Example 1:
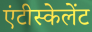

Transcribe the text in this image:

एंटीस्केलेंट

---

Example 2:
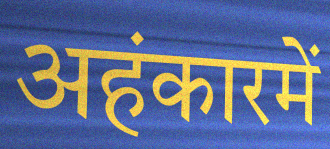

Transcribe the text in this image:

अहंकारमें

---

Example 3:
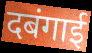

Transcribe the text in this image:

दबंगाई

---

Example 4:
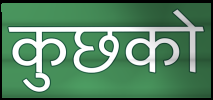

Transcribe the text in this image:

कुछको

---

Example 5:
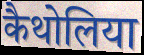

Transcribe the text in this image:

कैथोलिया